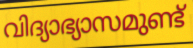
വിദ്യാഭ്യാസമുണ്ട്